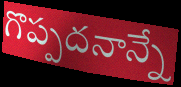
గొప్పదనాన్నే